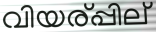
വിയര്പ്പില്